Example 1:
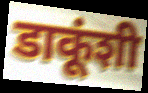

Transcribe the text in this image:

डाकूंशी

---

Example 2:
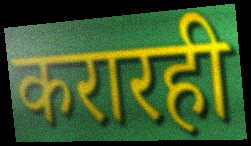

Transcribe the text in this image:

करारही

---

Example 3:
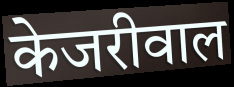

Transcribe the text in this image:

केजरीवाल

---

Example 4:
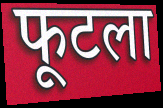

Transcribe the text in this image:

फूटला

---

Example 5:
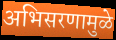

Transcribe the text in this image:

अभिसरणामुळे